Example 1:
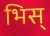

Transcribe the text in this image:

भिस्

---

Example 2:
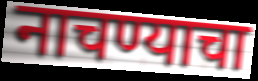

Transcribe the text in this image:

नाचण्याचा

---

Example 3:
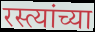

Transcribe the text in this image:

रस्त्यांच्या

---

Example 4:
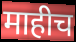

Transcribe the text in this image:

माहीच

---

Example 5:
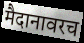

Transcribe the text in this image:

मैदानावरच